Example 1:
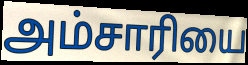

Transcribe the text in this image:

அம்சாரியை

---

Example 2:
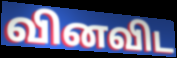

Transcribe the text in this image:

வினவிட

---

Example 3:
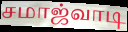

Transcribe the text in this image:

சமாஜ்வாடி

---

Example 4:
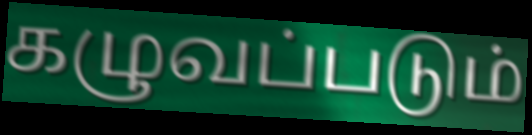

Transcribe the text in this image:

கழுவப்படும்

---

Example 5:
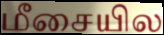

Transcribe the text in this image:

மீசையில